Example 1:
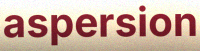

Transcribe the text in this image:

aspersion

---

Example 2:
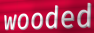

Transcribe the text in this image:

wooded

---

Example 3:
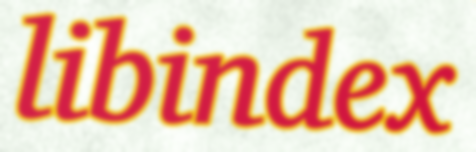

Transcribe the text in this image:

libindex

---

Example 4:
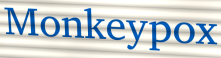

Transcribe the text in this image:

Monkeypox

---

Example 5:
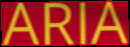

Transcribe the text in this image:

ARIA